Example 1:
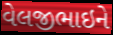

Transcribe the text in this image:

વેલજીભાઇને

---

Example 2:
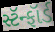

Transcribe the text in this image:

સ્ટૅન્ફૉર્ડ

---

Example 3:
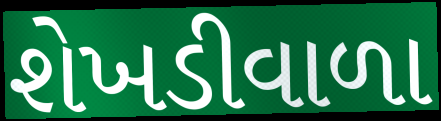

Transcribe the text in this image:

શેખડીવાળા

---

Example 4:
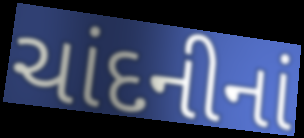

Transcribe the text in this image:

ચાંદનીનાં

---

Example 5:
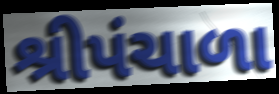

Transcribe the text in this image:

શ્રીપંચાળા